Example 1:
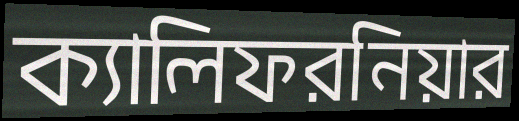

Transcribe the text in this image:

ক্যালিফরনিয়ার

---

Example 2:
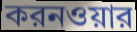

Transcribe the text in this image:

করনওয়ার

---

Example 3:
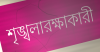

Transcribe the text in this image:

শৃঙ্খলারক্ষাকারী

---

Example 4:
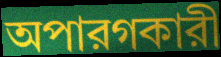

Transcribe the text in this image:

অপারগকারী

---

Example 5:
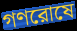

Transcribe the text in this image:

গণরোষে